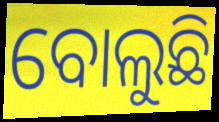
ବୋଲୁଛି